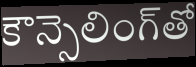
కౌన్సెలింగ్‌తో